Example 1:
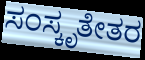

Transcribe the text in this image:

ಸಂಸ್ಕೃತೇತರ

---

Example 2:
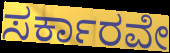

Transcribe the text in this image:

ಸರ್ಕಾರವೇ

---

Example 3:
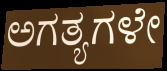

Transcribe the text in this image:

ಅಗತ್ಯಗಳೇ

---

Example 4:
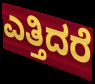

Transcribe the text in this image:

ಎತ್ತಿದರೆ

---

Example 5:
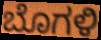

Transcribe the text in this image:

ಬೊಗಳಿ